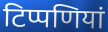
टिप्पणियां